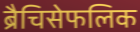
ब्रैचिसेफलिक